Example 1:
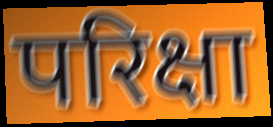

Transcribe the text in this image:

परिक्षा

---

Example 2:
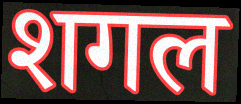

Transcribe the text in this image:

शगल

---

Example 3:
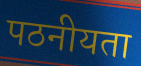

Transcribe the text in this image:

पठनीयता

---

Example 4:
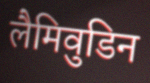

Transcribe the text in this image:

लैमिवुडिन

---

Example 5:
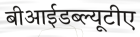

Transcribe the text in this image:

बीआईडब्ल्यूटीए